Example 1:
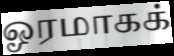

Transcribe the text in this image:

ஓரமாகக்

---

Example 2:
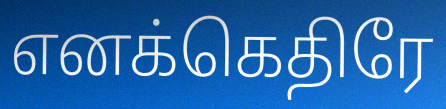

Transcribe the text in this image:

எனக்கெதிரே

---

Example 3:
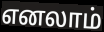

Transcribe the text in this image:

எனலாம்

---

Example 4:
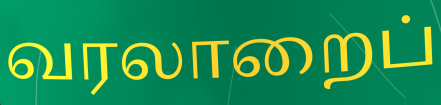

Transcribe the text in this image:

வரலாறைப்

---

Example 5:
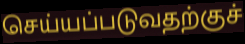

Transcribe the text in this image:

செய்யப்படுவதற்குச்